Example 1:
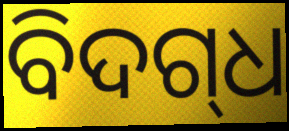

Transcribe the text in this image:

ବିଦଗ୍‌ଧ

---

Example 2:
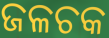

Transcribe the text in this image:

ଜଳଚକ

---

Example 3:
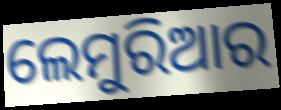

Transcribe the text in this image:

ଲେମୁରିଆର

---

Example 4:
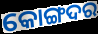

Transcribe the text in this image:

କୋଙ୍ଗଦର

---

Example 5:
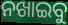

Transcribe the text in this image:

ନଖାଇବୁ